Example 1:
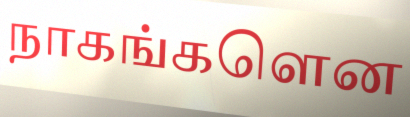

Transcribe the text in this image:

நாகங்களென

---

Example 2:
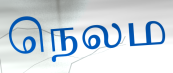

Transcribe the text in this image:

நெலம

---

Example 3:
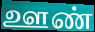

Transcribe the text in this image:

ஊண்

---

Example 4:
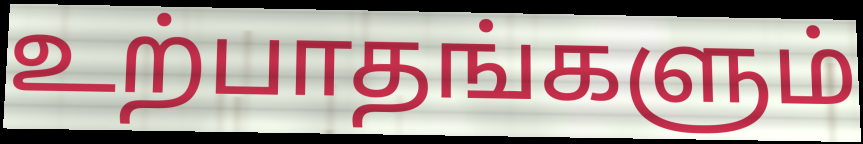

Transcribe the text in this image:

உற்பாதங்களும்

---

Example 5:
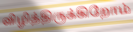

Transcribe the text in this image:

விழித்திருக்கிறோம்